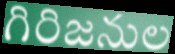
గిరిజనుల